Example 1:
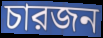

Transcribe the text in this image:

চারজন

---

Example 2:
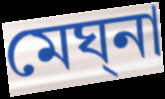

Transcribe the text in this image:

মেঘ্‌না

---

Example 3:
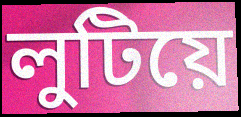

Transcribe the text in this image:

লুটিয়ে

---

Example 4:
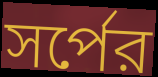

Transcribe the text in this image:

সর্পের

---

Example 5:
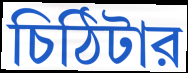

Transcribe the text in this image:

চিঠিটার